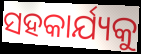
ସହକାର୍ଯ୍ୟକୁ